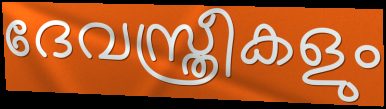
ദേവസ്ത്രീകളും